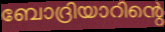
ബോദ്രിയാറിന്റെ